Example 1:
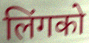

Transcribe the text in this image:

लिंगको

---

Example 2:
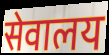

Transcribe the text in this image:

सेवालय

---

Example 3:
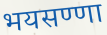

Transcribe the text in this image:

भयसण्णा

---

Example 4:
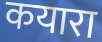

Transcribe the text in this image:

कयारा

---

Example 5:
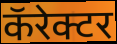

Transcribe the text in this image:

कॅरेक्टर